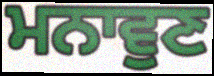
ਮਨਾਵੁਣ